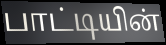
பாட்டியின்